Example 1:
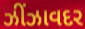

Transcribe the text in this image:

ઝીંઝાવદર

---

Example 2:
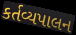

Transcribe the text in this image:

કર્તવ્યપાલન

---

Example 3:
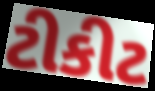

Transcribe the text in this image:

ટીકીટ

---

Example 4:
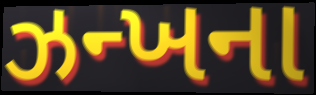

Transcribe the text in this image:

ઝન્ખના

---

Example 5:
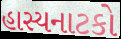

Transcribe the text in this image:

હાસ્યનાટકો